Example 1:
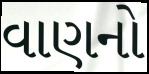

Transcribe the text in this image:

વાણનો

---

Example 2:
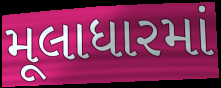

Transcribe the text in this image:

મૂલાધારમાં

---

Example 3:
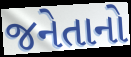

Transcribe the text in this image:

જનેતાનો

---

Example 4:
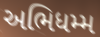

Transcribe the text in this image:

અભિધમ્મ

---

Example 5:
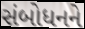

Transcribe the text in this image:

સંબોધનને